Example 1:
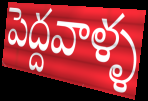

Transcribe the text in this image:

పెద్దవాళ్ళ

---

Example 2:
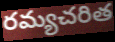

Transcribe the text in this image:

రమ్యచరిత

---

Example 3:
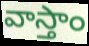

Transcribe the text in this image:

వాస్తాం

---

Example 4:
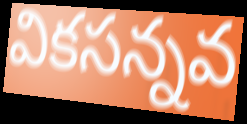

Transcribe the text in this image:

వికసన్నవ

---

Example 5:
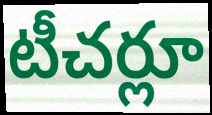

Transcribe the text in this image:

టీచర్లూ